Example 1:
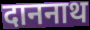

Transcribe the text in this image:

दाननाथ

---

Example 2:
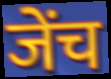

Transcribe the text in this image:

जेंच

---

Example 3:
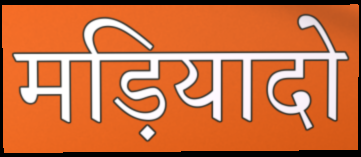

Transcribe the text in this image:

मड़ियादो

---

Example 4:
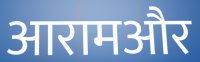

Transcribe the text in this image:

आरामऔर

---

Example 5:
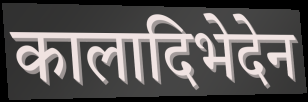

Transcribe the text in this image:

कालादिभेदेन